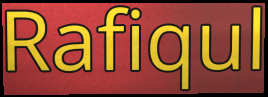
Rafiqul